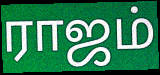
ராஜம்